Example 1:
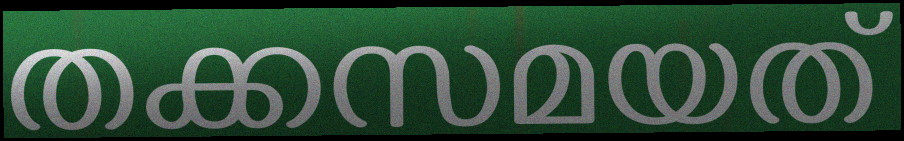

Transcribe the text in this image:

തക്കസമയത്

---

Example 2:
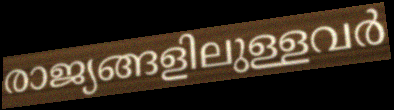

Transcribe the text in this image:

രാജ്യങ്ങളിലുള്ളവർ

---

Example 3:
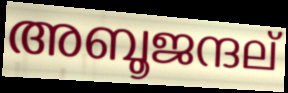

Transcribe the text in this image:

അബൂജന്ദല്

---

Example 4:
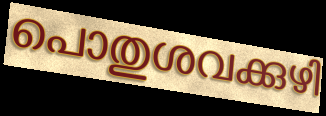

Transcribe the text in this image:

പൊതുശവക്കുഴി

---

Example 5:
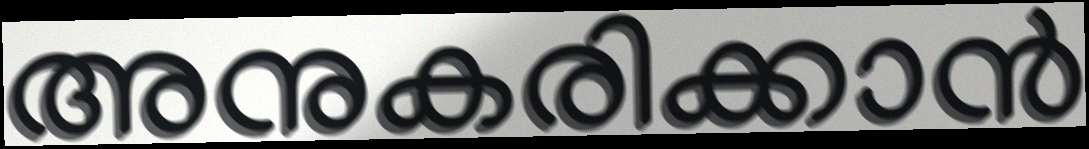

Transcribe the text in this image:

അനുകരിക്കാൻ